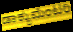
ಡಾಕ್ಯುಮೆಂಟರಿ